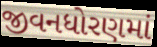
જીવનધોરણમાં